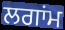
ਲਗਾਂਮ